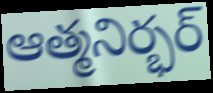
ఆత్మనిర్భర్